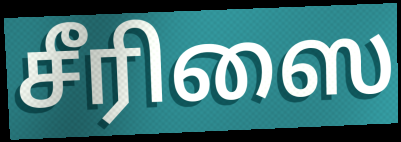
சீரிஸை